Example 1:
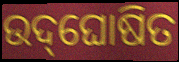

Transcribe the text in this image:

ଉଦ୍‌ଘୋଷିତ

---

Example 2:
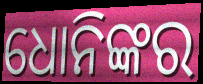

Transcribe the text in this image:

ଧୋନିଙ୍କର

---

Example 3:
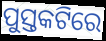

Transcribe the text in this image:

ପୁସ୍ତକଟିରେ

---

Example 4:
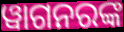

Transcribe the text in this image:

ୱାଗନରଙ୍କ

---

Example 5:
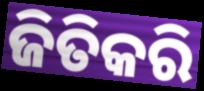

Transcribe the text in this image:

ଜିତିକରି